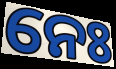
ନେଃ